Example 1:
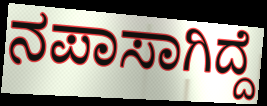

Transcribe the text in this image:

ನಪಾಸಾಗಿದ್ದೆ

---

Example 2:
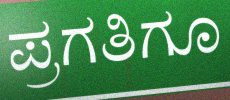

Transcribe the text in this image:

ಪ್ರಗತಿಗೂ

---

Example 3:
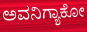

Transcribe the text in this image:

ಅವನಿಗ್ಯಾಕೋ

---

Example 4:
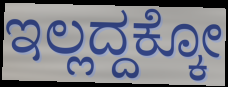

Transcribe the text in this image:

ಇಲ್ಲದ್ದಕ್ಕೋ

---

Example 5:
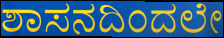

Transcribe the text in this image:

ಶಾಸನದಿಂದಲೇ